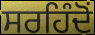
ਸਰਹਿੰਦੋਂ